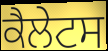
ਕੈਲੇਟਸ